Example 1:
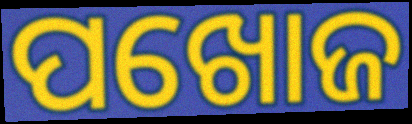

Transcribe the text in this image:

ପଖୋଜ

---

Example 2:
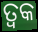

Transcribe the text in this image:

ତ୍ୱକ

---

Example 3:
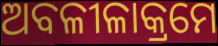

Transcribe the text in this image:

ଅବଳୀଳାକ୍ରମେ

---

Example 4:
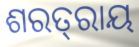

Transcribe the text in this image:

ଶରତ୍‌ରାୟ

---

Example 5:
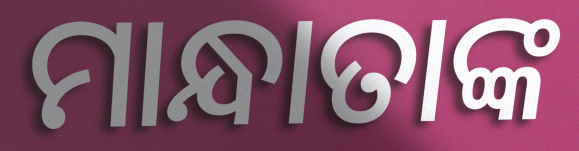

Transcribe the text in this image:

ମାନ୍ଧାତାଙ୍କ